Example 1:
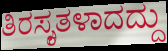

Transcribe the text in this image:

ತಿರಸ್ಕೃತಳಾದದ್ದು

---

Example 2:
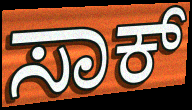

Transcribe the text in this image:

ಸಾಕ್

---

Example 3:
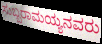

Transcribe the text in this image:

ಸುಬ್ಬರಾಮಯ್ಯನವರು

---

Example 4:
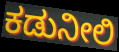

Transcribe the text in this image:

ಕಡುನೀಲಿ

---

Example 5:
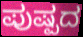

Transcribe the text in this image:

ಪುಷ್ಪದ